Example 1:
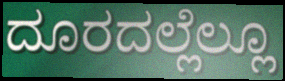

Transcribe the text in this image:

ದೂರದಲ್ಲೆಲ್ಲೂ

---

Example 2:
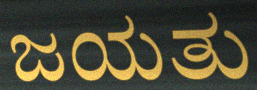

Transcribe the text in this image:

ಜಯತು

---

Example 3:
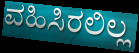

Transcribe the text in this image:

ವಹಿಸಿರಲಿಲ್ಲ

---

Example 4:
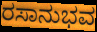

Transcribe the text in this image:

ರಸಾನುಭವ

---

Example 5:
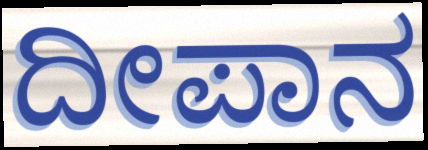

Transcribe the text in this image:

ದೀಪಾನ